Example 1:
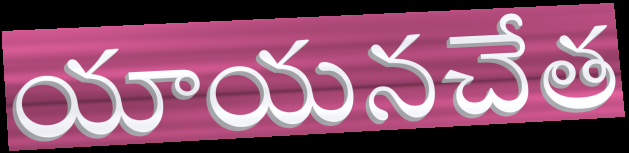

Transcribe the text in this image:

యాయనచేత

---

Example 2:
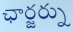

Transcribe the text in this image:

ఛార్జర్ను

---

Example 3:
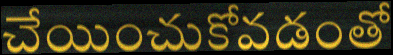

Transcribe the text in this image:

చేయించుకోవడంతో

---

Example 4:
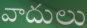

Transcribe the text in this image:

వాదులు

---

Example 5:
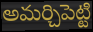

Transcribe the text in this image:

అమర్చిపెట్టి